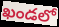
ఖండలో